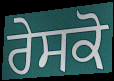
ਰੇਸਕੋ